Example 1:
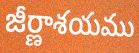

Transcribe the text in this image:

జీర్ణాశయము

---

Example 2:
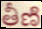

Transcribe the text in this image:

తీణి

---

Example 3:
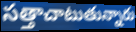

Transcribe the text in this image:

సత్తాచాటుతున్నారు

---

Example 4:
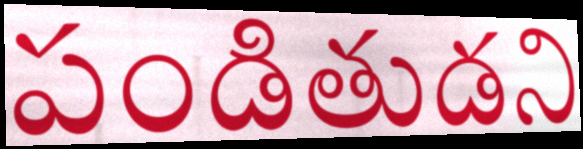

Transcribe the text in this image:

పండితుడని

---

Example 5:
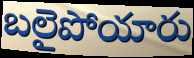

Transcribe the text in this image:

బలైపోయారు